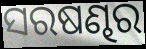
ସରଷଣ୍ଢର